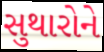
સુથારોને